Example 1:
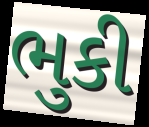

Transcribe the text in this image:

ભુકી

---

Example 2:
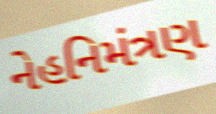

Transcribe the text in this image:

નેહનિમંત્રણ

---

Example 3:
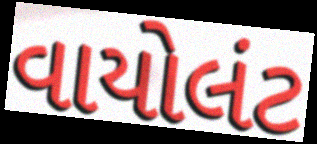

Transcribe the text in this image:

વાયોલંટ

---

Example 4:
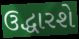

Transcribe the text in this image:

ઉદ્ધારશે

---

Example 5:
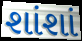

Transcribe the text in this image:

શાંશાં